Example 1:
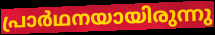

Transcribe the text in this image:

പ്രാർഥനയായിരുന്നു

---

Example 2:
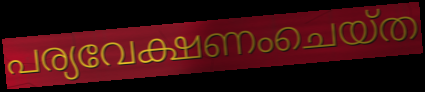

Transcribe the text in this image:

പര്യവേക്ഷണംചെയ്ത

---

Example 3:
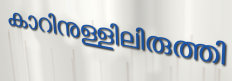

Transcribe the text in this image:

കാറിനുള്ളിലിരുത്തി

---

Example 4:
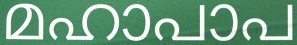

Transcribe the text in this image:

മഹാപാപ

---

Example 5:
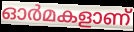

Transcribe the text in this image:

ഓർമകളാണ്